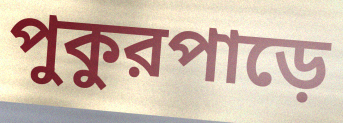
পুকুরপাড়ে